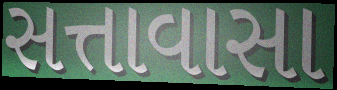
સત્તાવાસા